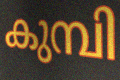
കുമ്പി